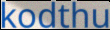
kodthu